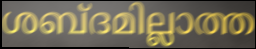
ശബ്ദമില്ലാത്ത